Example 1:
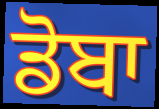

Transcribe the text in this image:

ਡੋਬਾ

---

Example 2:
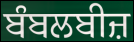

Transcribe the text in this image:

ਬੰਬਲਬੀਜ਼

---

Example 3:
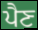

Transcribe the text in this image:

ਪੈਣ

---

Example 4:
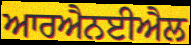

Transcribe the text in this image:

ਆਰਐਨਈਐਲ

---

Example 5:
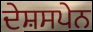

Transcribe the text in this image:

ਦੇਸ਼ਸਪੇਨ